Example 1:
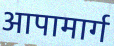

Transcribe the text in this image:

आपामार्ग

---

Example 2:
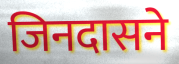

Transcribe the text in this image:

जिनदासने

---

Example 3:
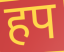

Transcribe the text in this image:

हप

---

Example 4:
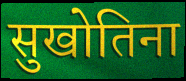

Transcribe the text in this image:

सुखोतिना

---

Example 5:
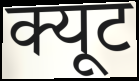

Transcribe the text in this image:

क्यूट